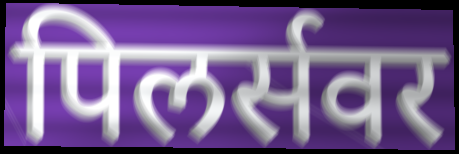
पिलर्सवर